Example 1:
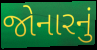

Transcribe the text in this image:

જોનારનું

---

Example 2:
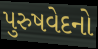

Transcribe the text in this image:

પુરુષવેદનો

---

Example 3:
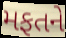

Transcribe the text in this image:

મફતને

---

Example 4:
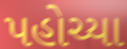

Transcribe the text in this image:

પહોચ્યા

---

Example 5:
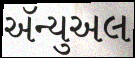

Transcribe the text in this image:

ઍન્યુઅલ